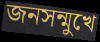
জনসন্মুখে